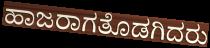
ಹಾಜರಾಗತೊಡಗಿದರು